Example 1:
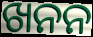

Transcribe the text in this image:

ଖନନ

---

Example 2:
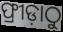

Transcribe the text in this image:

ଫ୍ରୀଡ଼ାଠୁ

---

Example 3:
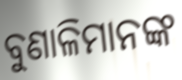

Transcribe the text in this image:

ବୁଣାଳିମାନଙ୍କ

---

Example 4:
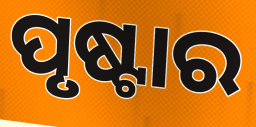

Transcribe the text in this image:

ପୃଷ୍ଟାର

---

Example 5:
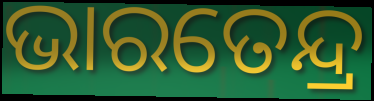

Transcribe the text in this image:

ଭାରତେନ୍ଦ୍ର